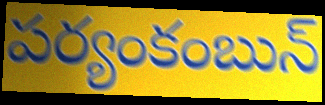
పర్యంకంబున్